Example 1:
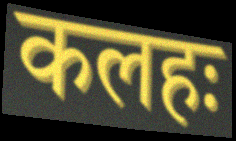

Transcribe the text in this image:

कलहः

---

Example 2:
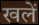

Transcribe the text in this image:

खलें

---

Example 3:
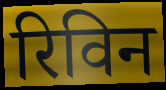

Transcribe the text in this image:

रिविन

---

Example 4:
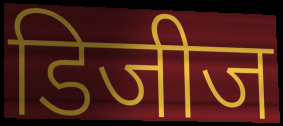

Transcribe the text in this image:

डिजीज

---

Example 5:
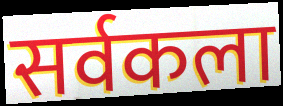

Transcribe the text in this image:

सर्वकला